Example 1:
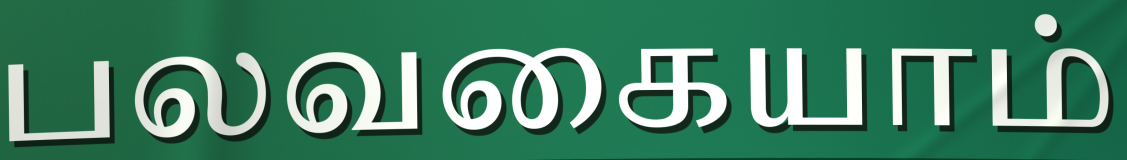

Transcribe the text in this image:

பலவகையாம்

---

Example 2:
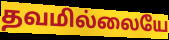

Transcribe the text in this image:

தவமில்லையே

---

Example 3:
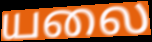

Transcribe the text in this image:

யலை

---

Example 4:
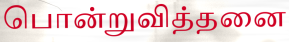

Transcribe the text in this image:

பொன்றுவித்தனை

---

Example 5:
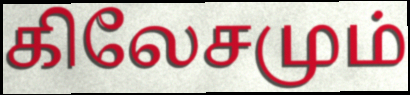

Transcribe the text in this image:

கிலேசமும்